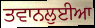
ਤਵਾਨਲੁਈਆ